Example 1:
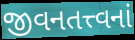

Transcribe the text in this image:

જીવનતત્ત્વનાં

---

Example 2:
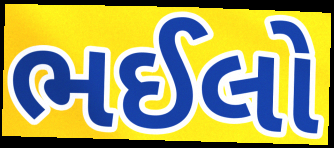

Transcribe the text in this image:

ભઈલો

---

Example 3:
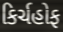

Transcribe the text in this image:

કિર્ચહોફ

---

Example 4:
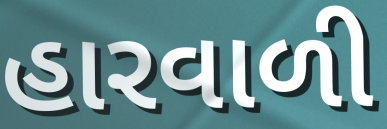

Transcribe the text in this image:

હારવાળી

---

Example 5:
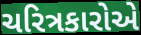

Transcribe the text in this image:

ચરિત્રકારોએ